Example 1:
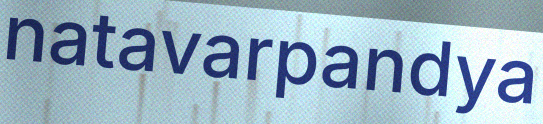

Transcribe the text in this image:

natavarpandya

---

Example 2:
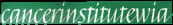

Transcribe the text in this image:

cancerinstitutewia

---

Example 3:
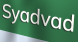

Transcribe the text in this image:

Syadvad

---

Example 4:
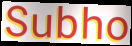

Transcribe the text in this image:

Subho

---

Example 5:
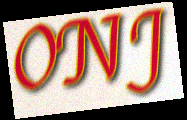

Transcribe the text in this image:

ONJ